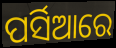
ପର୍ସିଆରେ